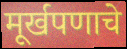
मूर्खपणाचे